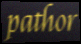
pathor